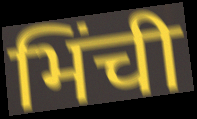
भिंची